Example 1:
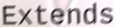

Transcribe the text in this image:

Extends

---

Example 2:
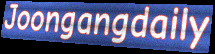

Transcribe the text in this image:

Joongangdaily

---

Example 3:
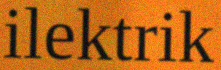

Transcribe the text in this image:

ilektrik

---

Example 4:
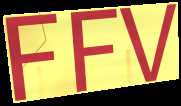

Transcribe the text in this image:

FFV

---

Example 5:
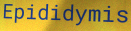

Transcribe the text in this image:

Epididymis